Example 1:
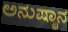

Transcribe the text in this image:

ಅನುಷ್ಠಾನ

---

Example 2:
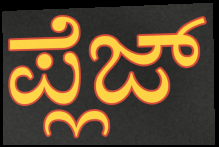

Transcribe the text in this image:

ಪ್ಲೆಜ್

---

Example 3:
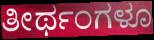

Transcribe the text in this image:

ತೀರ್ಥಂಗಳೂ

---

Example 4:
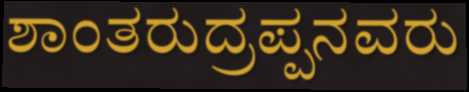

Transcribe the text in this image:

ಶಾಂತರುದ್ರಪ್ಪನವರು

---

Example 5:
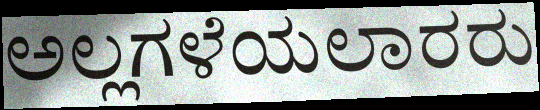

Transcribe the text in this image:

ಅಲ್ಲಗಳೆಯಲಾರರು